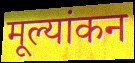
मूल्‍यांकन